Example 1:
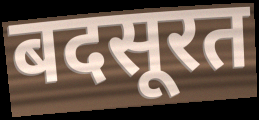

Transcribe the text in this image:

बदसूरत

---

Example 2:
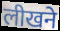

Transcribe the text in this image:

लीखने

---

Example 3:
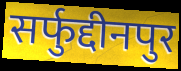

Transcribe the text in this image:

सर्फुद्दीनपुर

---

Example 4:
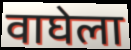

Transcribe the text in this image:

वाघेला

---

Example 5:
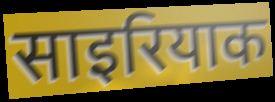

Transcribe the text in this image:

साइरियाक